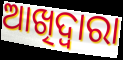
ଆଖିଦ୍ୱାରା